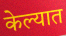
केल्यात